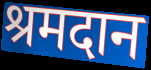
श्रमदान